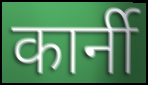
कार्नी